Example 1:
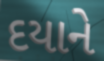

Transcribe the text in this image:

દયાને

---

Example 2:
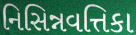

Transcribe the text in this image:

નિસિન્નવત્તિકા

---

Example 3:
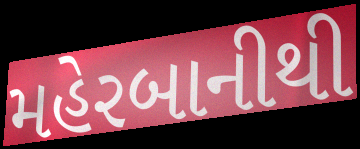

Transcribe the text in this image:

મહેરબાનીથી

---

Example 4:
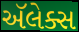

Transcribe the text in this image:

ઍલેક્સ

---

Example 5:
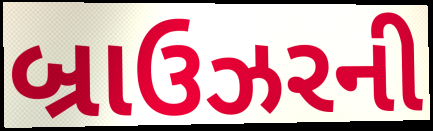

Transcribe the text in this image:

બ્રાઉઝરની